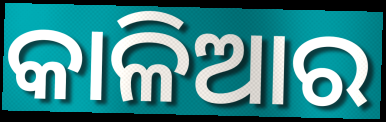
କାଳିଆର